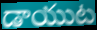
డాయుట